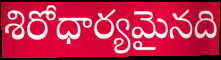
శిరోధార్యమైనది